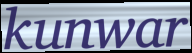
kunwar